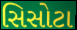
સિસોટા